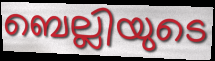
ബെല്ലിയുടെ